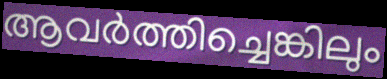
ആവർത്തിച്ചെങ്കിലും